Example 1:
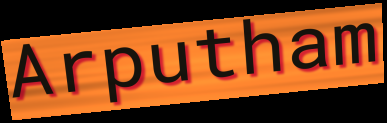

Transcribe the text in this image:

Arputham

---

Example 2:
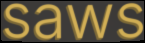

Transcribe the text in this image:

saws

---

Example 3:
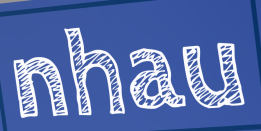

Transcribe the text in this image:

nhau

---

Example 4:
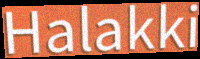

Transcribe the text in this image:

Halakki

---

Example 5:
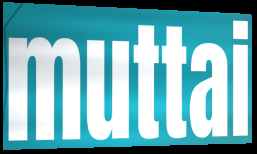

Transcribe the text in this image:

muttai